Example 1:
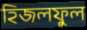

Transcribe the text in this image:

হিজলফুল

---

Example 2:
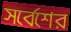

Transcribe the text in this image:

সর্বেশের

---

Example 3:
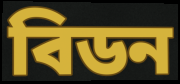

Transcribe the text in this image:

বিডন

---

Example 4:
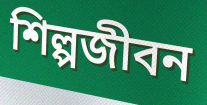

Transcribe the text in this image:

শিল্পজীবন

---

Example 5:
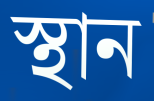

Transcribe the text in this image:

স্থান